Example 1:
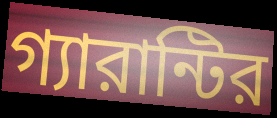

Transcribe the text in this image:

গ্যারান্টির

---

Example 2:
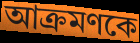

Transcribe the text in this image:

আক্রমণকে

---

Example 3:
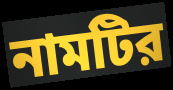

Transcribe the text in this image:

নামটির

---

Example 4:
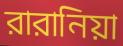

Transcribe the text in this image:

রারানিয়া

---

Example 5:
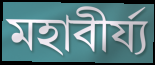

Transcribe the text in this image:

মহাবীর্য্য